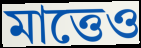
মাত্তেও